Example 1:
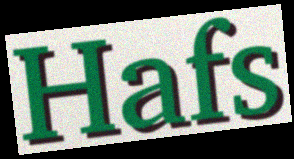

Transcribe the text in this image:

Hafs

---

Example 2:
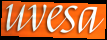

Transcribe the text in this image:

uvesa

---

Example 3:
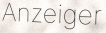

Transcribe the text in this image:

Anzeiger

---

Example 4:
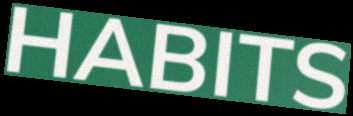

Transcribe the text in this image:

HABITS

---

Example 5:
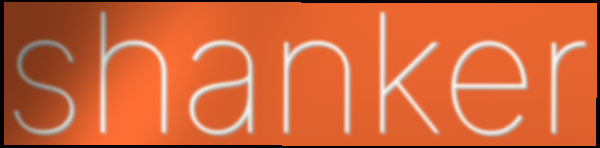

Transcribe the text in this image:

shanker